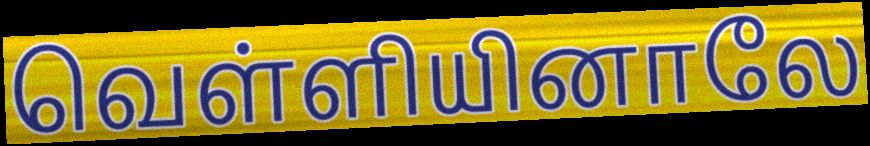
வெள்ளியினாலே